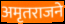
अमृतराजने